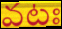
వటః